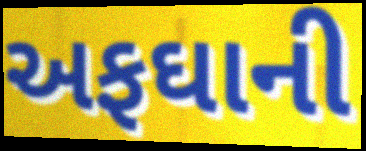
અફઘાની